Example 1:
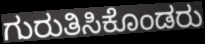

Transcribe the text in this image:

ಗುರುತಿಸಿಕೊಂಡರು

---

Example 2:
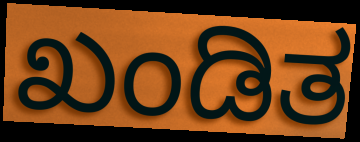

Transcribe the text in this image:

ಖಂಡಿತ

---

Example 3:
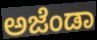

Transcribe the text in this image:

ಅಜೆಂಡಾ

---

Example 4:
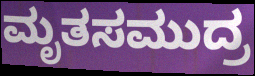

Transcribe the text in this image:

ಮೃತಸಮುದ್ರ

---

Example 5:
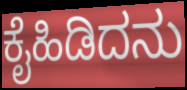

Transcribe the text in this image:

ಕೈಹಿಡಿದನು